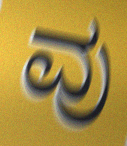
ವು